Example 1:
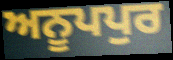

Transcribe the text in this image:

ਅਨੂਪਪੁਰ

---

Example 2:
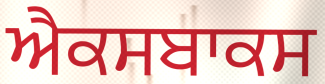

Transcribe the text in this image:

ਐਕਸਬਾਕਸ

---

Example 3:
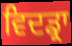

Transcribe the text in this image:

ਵਿਦਡ੍ਰਾ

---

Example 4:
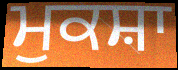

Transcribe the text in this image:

ਮੁਕਸ਼ਾ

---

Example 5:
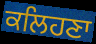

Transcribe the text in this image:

ਕਲਿਹਣਾ